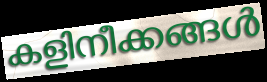
കളിനീക്കങ്ങൾ